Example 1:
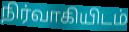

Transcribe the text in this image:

நிர்வாகியிடம்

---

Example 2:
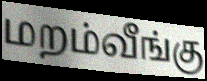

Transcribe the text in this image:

மறம்வீங்கு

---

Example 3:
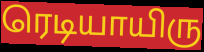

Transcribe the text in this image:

ரெடியாயிரு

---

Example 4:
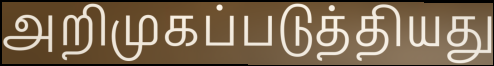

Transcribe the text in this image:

அறிமுகப்படுத்தியது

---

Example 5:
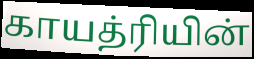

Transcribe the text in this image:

காயத்ரியின்